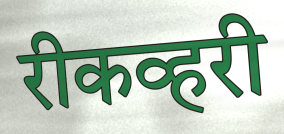
रीकव्हरी